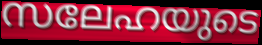
സലേഹയുടെ